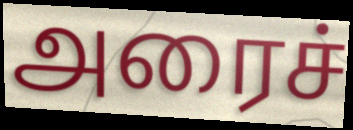
அரைச்